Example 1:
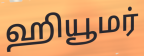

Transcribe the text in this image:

ஹியூமர்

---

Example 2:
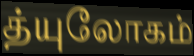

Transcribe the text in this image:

த்யுலோகம்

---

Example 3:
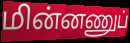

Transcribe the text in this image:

மின்னணுப்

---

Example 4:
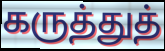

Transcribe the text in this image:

கருத்துத்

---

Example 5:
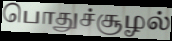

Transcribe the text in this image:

பொதுச்சூழல்